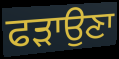
ਫੜਾਉਣਾ